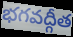
భగవద్గీత